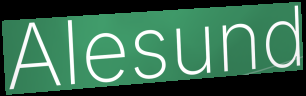
Alesund